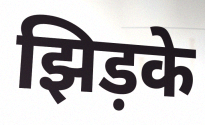
झिड़के